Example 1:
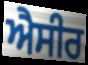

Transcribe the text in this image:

ਐਸੀਰ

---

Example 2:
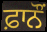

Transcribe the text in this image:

ਫ਼ਾਨੌਂ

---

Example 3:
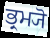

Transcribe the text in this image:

ਭ੍ਰਮ੍ਯੋ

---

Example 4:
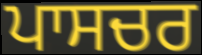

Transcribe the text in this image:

ਪਾਸਚਰ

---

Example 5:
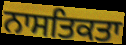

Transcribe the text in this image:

ਨਾਸਤਿਕਤਾ